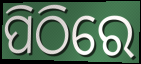
ପିଠିରେ